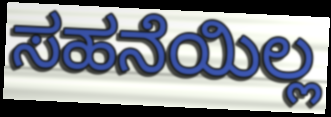
ಸಹನೆಯಿಲ್ಲ